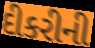
દીકરીની